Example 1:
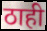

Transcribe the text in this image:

ठाही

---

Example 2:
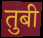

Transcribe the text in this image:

तुबी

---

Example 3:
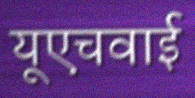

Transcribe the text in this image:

यूएचवाई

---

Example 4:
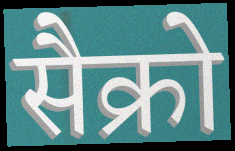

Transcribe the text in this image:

सैक्रो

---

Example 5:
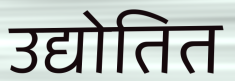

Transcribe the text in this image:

उद्योतित